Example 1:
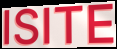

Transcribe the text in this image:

ISITE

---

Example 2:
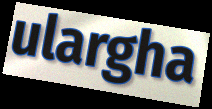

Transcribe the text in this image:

ulargha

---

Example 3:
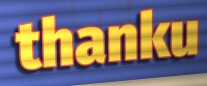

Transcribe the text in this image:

thanku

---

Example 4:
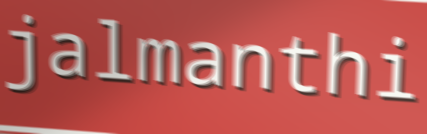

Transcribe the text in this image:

jalmanthi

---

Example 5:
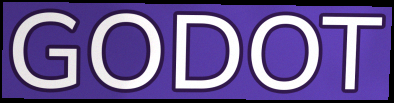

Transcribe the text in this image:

GODOT